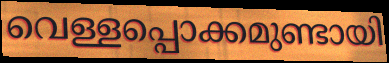
വെള്ളപ്പൊക്കമുണ്ടായി